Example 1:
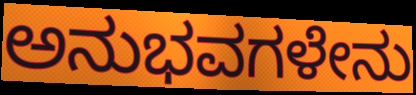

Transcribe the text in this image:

ಅನುಭವಗಳೇನು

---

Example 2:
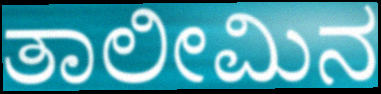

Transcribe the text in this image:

ತಾಲೀಮಿನ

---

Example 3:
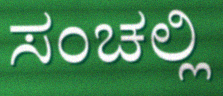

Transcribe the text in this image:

ಸಂಚಲ್ಲಿ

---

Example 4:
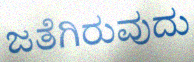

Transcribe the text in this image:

ಜತೆಗಿರುವುದು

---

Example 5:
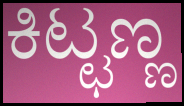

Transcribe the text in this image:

ಕಿಟ್ಟಣ್ಣ